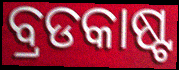
ବ୍ରଡକାଷ୍ଟ